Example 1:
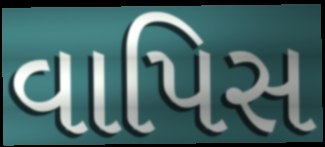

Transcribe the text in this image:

વાપિસ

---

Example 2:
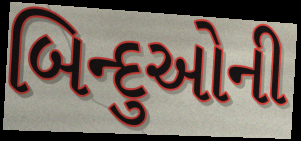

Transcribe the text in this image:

બિન્દુઓની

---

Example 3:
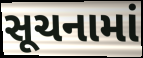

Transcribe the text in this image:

સૂચનામાં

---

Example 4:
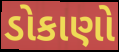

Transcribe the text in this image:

ડોકાણો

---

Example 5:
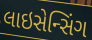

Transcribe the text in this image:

લાઇસેન્સિંગ